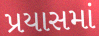
પ્રયાસમાં